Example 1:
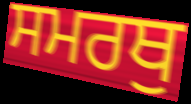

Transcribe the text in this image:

ਸਮਰਥੁ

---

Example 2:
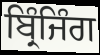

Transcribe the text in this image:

ਬ੍ਰਿੰਜਿੰਗ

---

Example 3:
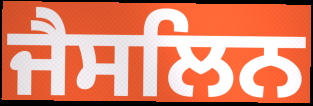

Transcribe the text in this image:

ਜੈਸਲਿਨ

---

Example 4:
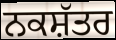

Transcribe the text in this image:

ਨਕਸ਼ੱਤਰ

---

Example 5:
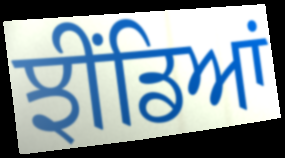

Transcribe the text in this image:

ਝੀਂਡਿਆਂ